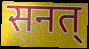
सनत्